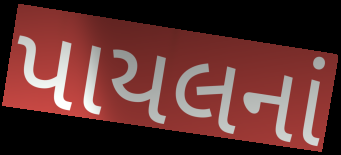
પાયલનાં